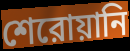
শেরোয়ানি